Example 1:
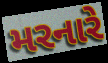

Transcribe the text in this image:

મરનારે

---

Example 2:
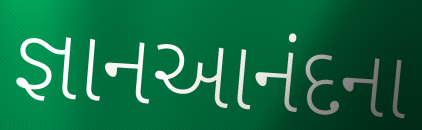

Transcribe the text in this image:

જ્ઞાનઆનંદના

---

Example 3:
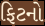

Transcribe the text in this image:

ફિટનો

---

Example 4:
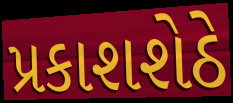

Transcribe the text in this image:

પ્રકાશશેઠે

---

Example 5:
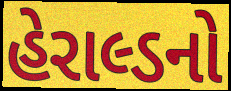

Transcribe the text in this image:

હેરાલ્ડનો